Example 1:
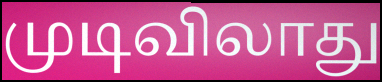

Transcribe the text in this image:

முடிவிலாது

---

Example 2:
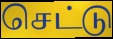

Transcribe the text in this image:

செட்டு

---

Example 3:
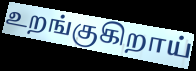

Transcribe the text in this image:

உறங்குகிறாய்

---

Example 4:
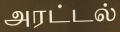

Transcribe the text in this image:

அரட்டல்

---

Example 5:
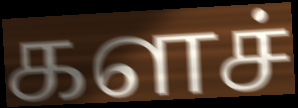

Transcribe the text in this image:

களச்